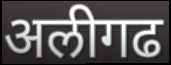
अलीगढ